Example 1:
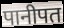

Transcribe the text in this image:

पानीपत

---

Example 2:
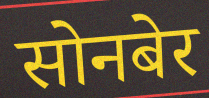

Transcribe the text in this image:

सोनबेर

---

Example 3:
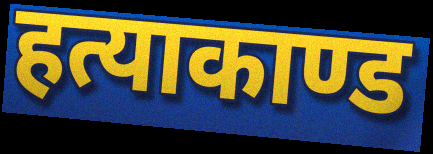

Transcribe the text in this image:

हत्याकाण्ड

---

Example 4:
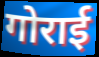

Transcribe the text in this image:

गोराई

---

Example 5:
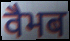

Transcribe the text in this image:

वैभब